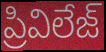
ప్రివిలేజ్